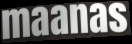
maanas